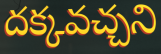
దక్కవచ్చని